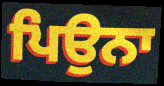
ਪਿਉਨਾ